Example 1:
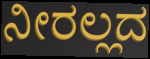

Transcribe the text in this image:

ನೀರಲ್ಲದ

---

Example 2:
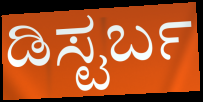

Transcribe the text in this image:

ಡಿಸ್ಟರ್ಬ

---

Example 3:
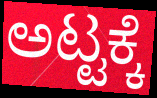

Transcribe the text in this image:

ಅಟ್ಟಕ್ಕೆ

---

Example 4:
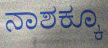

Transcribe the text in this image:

ನಾಶಕ್ಕೂ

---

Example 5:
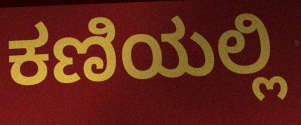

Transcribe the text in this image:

ಕಣಿಯಲ್ಲಿ